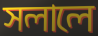
সলালে